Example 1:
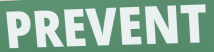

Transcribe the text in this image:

PREVENT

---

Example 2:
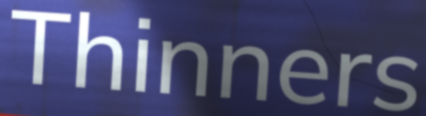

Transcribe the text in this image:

Thinners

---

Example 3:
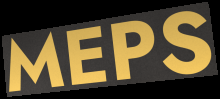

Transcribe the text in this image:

MEPS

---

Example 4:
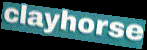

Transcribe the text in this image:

clayhorse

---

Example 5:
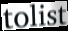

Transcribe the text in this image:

tolist